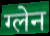
ग्लेन